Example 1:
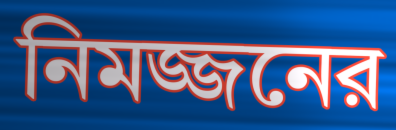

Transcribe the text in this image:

নিমজ্জনের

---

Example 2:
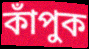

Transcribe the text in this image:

কাঁপুক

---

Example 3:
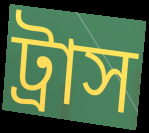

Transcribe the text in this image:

ট্রাস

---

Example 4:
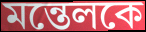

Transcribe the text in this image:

মন্তেলকে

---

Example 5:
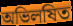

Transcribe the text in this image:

অভিলষিত